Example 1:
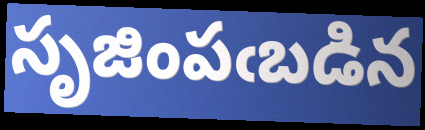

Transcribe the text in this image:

సృజింపఁబడిన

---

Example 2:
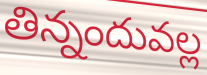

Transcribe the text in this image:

తిన్నందువల్ల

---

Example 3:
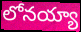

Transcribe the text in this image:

లోనయ్యా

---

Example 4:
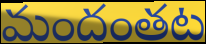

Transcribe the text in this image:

మందంతట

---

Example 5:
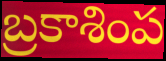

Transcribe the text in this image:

బ్రకాశింప